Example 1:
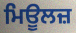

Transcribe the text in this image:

ਮਿਊਲਜ਼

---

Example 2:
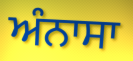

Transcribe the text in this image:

ਅੰਨਾਸਾ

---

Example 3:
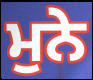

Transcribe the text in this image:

ਮੁਨੇ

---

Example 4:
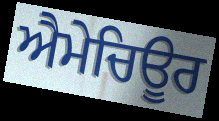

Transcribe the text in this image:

ਐਮੇਚਿਊਰ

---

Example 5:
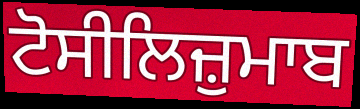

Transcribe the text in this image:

ਟੋਸੀਲਿਜ਼ੁਮਾਬ